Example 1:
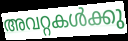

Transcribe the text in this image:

അവറ്റകൾക്കു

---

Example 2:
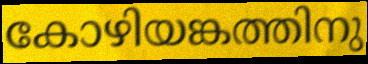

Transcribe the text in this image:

കോഴിയങ്കത്തിനു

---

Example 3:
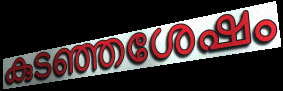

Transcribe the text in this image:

കുടഞ്ഞശേഷം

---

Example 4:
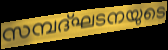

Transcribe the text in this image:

സമ്പദ്ഘടനയുടെ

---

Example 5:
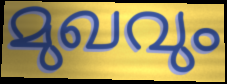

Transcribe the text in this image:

മുഖവും